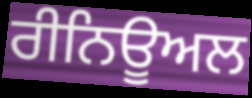
ਰੀਨਿਊਅਲ